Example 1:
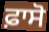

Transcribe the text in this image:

ਫ਼ਾਸੋ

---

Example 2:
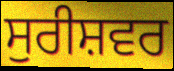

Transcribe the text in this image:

ਸੁਰੀਸ਼ਵਰ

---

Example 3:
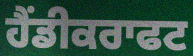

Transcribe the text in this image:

ਹੈਂਡੀਕਰਾਫਟ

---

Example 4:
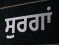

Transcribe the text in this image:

ਸੁਰਗਾਂ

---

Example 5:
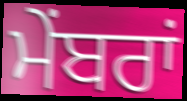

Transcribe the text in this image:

ਮੇਂਬਰਾਂ